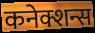
कनेक्शन्स